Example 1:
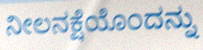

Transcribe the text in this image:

ನೀಲನಕ್ಷೆಯೊಂದನ್ನು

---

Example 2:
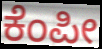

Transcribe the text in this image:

ಕೆಂಪೀ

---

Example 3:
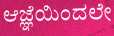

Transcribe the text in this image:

ಆಜ್ಞೆಯಿಂದಲೇ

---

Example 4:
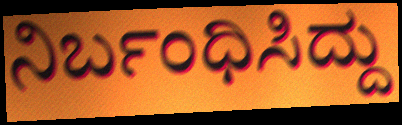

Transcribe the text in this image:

ನಿರ್ಬಂಧಿಸಿದ್ದು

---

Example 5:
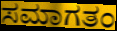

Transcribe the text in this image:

ಸಮಾಗತಂ